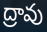
ద్రావు